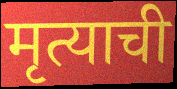
मृत्याची